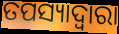
ତପସ୍ୟାଦ୍ୱାରା